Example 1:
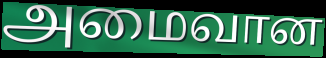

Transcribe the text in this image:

அமைவான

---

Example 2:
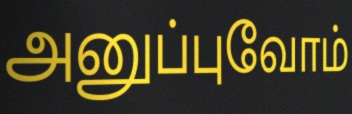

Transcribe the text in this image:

அனுப்புவோம்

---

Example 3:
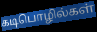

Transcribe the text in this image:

கடிபொழில்கள்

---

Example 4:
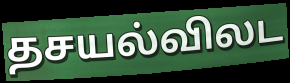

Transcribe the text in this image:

தசயல்விலட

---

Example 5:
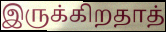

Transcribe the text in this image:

இருக்கிறதாத்